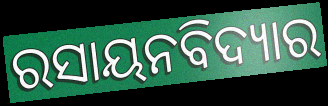
ରସାୟନବିଦ୍ୟାର